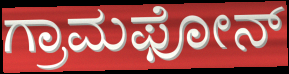
ಗ್ರಾಮಫೋನ್